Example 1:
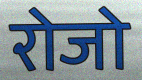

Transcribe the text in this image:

रोजो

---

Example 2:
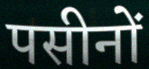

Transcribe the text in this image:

पसीनों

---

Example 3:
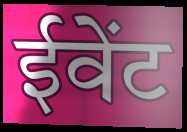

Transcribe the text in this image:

ईवेंट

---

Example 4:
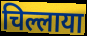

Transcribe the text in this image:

चिल्लाया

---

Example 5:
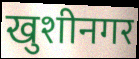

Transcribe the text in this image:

खुशीनगर